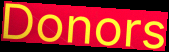
Donors